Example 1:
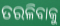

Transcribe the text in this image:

ତରଳିବାକୁ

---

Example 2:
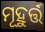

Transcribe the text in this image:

ମୂହୁର୍ତ୍ତ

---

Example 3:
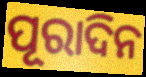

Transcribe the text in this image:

ପୂରାଦିନ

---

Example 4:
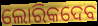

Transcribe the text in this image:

ଲୋରିକଦେବ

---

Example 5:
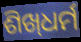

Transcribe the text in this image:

ଶିଖ୍‌ଧର୍ମ